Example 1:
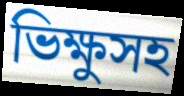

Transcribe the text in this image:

ভিক্ষুসহ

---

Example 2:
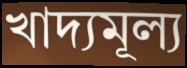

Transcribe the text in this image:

খাদ্যমূল্য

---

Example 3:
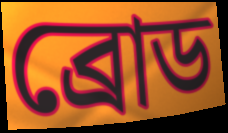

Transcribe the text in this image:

ব্রোড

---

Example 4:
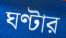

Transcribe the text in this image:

ঘণ্টার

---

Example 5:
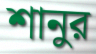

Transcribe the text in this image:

শানুর